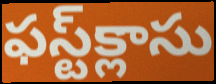
ఫస్ట్‌క్లాసు